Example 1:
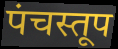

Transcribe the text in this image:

पंचस्तूप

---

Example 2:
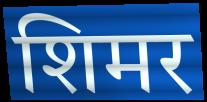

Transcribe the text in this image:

शिमर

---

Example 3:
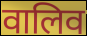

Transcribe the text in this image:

वालिव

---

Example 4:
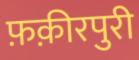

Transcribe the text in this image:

फ़क़ीरपुरी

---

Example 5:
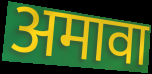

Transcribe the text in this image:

अमावा